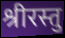
श्रीरस्तु